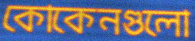
কোকেনগুলো